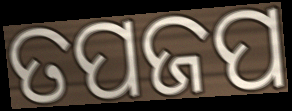
ତପଜପ